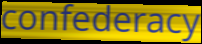
confederacy